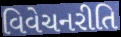
વિવેચનરીતિ